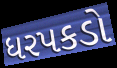
ધરપકડો